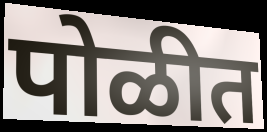
पोळीत